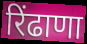
रिंढाणा